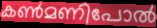
കൺമണിപോൽ